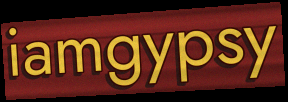
iamgypsy